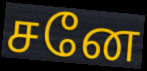
சனே